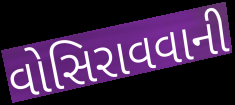
વોસિરાવવાની